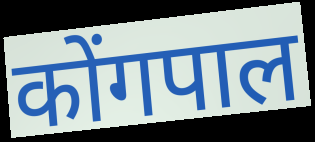
कोंगपाल